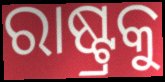
ରାଷ୍ଟ୍ରକୁ